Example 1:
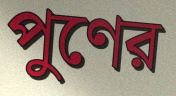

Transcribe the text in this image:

পুণের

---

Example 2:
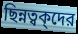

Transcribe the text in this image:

ছিন্নত্বক্দের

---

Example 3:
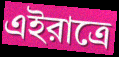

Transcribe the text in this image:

এইরাত্রে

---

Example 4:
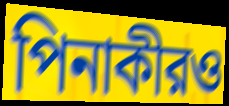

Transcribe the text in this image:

পিনাকীরও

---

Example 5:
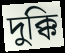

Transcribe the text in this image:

দুক্কি